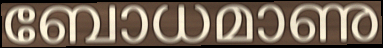
ബോധമാണു